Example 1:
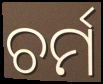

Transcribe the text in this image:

ଚର୍ମ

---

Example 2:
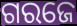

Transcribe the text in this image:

ଗରଜେ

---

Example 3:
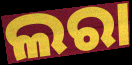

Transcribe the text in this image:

ଲରା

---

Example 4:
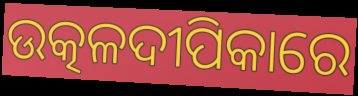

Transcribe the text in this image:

ଉତ୍କଳଦୀପିକାରେ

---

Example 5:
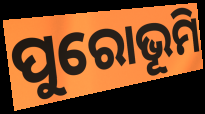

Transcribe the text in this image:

ପୁରୋଭୂମି